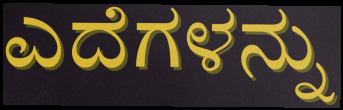
ಎದೆಗಳನ್ನು